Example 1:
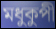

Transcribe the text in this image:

মধুকুপী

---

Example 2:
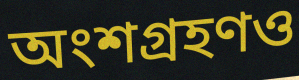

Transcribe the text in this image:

অংশগ্রহণও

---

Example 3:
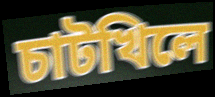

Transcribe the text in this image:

চাটখিলে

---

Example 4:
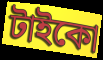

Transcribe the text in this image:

টাইকো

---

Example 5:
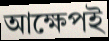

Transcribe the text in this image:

আক্ষেপই